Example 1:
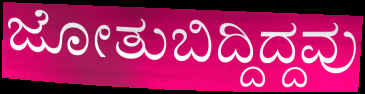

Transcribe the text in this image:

ಜೋತುಬಿದ್ದಿದ್ದವು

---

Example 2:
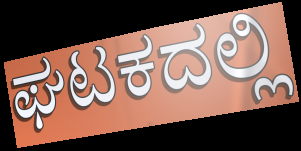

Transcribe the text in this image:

ಘಟಕದಲ್ಲಿ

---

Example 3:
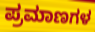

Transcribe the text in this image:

ಪ್ರಮಾಣಗಳ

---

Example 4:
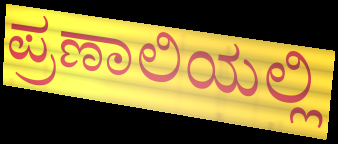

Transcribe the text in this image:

ಪ್ರಣಾಲಿಯಲ್ಲಿ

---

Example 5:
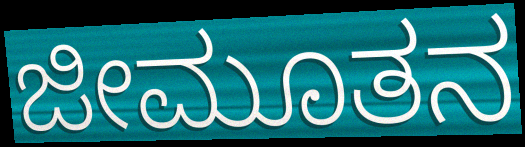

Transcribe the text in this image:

ಜೀಮೂತನ